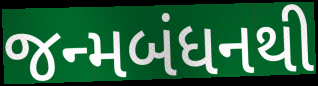
જન્મબંધનથી